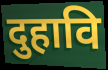
दुहावि